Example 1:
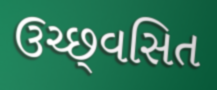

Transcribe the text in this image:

ઉચ્છ્‌વસિત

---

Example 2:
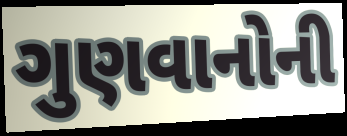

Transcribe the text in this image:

ગુણવાનોની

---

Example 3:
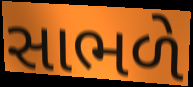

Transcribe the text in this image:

સાભળે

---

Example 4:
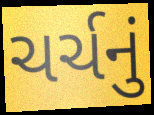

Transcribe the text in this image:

ચર્ચનું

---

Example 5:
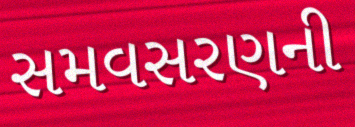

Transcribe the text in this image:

સમવસરણની